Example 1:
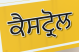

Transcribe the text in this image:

ਕੈਸਟ੍ਰੋਲ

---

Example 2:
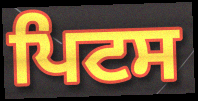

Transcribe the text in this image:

ਪਿਟਸ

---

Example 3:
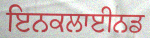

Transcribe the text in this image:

ਇਨਕਲਾਈਨਡ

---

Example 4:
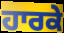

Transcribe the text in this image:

ਹਾਰਕੇ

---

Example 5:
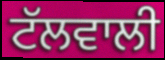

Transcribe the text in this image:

ਟੱਲਵਾਲੀ